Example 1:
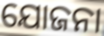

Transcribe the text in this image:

ଯୋଜନା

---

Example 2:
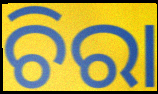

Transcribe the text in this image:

ଚିରା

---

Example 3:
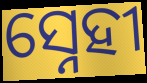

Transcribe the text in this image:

ସ୍ନେହୀ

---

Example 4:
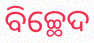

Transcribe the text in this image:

ବିଚ୍ଛେଦ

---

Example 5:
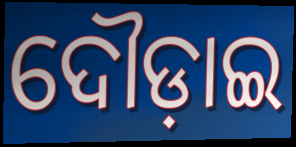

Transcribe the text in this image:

ଦୌଡ଼ାଇ